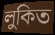
লুকিত